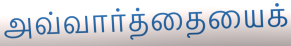
அவ்வார்த்தையைக்